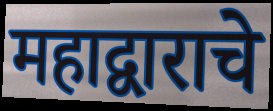
महाद्वाराचे